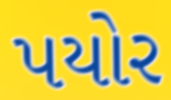
પયોર